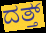
ದತ್ತ್